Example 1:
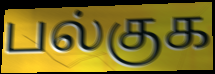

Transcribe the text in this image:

பல்குக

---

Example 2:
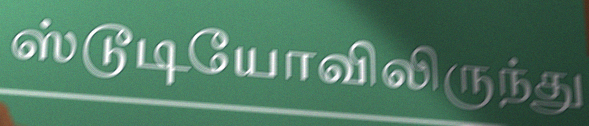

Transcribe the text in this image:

ஸ்டூடியோவிலிருந்து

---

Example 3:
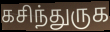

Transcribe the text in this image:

கசிந்துருக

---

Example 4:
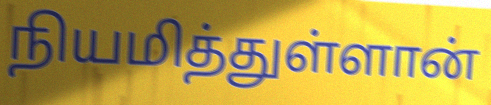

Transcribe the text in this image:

நியமித்துள்ளான்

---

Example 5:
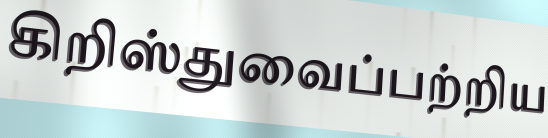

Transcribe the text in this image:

கிறிஸ்துவைப்பற்றிய